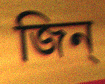
জিন্